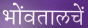
भोंवतालचें